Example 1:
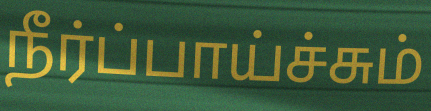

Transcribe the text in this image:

நீர்ப்பாய்ச்சும்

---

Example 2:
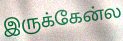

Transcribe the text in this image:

இருக்கேன்ல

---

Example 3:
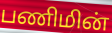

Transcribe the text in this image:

பணிமின்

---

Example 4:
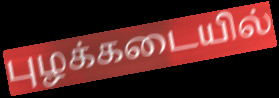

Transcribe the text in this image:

புழக்கடையில்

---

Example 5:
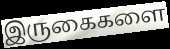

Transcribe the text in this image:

இருகைகளை